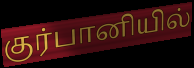
குர்பானியில்